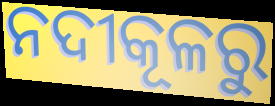
ନଦୀକୂଳରୁ